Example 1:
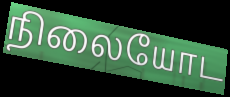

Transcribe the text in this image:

நிலையோட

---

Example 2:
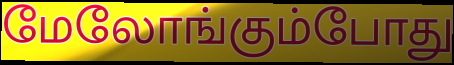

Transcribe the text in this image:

மேலோங்கும்போது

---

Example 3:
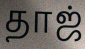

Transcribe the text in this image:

தாஜ்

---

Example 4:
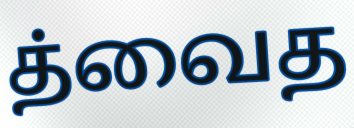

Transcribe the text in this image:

த்வைத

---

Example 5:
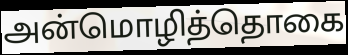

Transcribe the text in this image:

அன்மொழித்தொகை